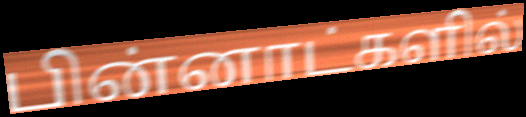
பின்னாட்களில்